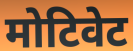
मोटिवेट